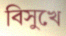
বিসুখে